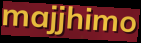
majjhimo